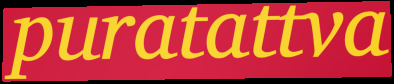
puratattva